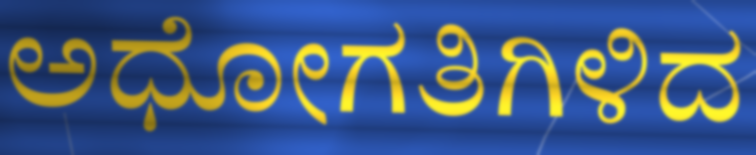
ಅಧೋಗತಿಗಿಳಿದ